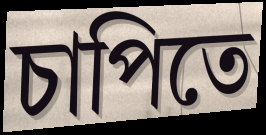
চাপিতে